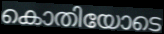
കൊതിയോടെ